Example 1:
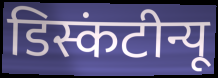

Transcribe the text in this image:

डिस्कंटीन्यू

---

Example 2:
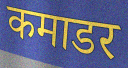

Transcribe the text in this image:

कमाडर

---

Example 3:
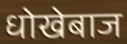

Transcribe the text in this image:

धोखेबाज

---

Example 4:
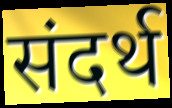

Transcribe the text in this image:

संदर्थ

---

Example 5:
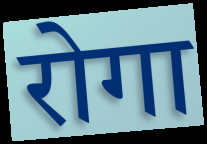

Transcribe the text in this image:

रोगा